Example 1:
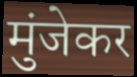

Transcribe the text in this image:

मुंजेकर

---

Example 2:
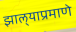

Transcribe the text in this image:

झाल्याप्रमाणे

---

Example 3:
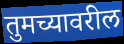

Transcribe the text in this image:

तुमच्यावरील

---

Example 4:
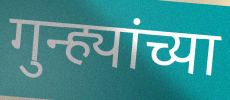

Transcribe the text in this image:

गुन्ह्यांच्या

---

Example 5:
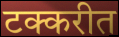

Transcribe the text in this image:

टक्करीत